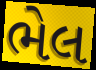
ભેલ